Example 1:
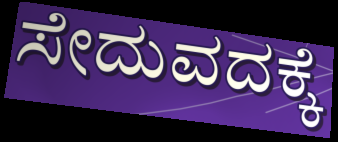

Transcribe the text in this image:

ಸೇದುವದಕ್ಕೆ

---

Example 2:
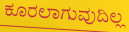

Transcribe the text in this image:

ಕೂರಲಾಗುವುದಿಲ್ಲ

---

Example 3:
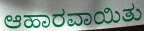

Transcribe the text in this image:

ಆಹಾರವಾಯಿತು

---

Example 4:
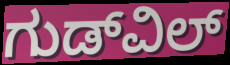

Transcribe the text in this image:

ಗುಡ್‌ವಿಲ್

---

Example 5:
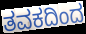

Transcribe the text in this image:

ತವಕದಿಂದ